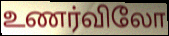
உணர்விலோ